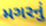
મગરનું